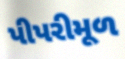
પીપરીમૂળ